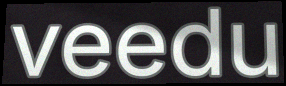
veedu